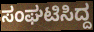
ಸಂಘಟಿಸಿದ್ದ